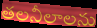
తలనీలాలను